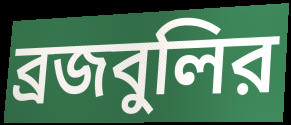
ব্রজবুলির